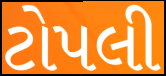
ટોપલી